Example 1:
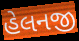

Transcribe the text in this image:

હેલનજી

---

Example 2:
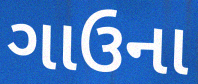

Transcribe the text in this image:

ગાઉના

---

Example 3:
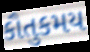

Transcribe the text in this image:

કૌતુકમય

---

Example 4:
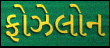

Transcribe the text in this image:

ફોઝેલોન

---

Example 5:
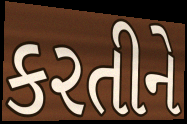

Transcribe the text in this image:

કરતીને